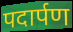
पदार्पण